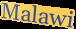
Malawi